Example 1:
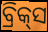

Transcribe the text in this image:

ବ୍ରିକ୍‌ସ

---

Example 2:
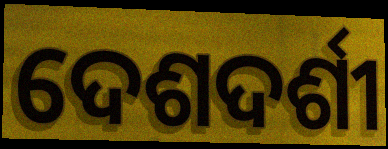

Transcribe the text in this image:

ଦେଶଦର୍ଶୀ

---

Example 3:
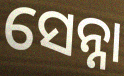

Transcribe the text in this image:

ସେନ୍ନା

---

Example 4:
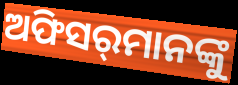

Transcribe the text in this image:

ଅଫିସର୍‌ମାନଙ୍କୁ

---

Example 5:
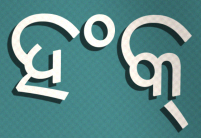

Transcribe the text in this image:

ହଂକ୍